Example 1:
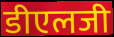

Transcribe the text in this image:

डीएलजी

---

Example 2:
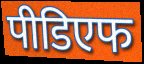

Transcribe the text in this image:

पीडिएफ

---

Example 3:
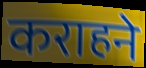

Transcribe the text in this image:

कराहने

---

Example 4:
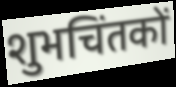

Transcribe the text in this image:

शुभचिंतकों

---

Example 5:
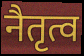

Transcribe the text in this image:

नैतृत्व